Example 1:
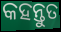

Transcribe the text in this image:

କହନ୍ତୁତ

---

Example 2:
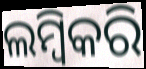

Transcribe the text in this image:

ଲମ୍ବିକରି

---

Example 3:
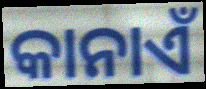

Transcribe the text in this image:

କାନାଏଁ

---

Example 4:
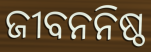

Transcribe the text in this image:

ଜୀବନନିଷ୍ଠ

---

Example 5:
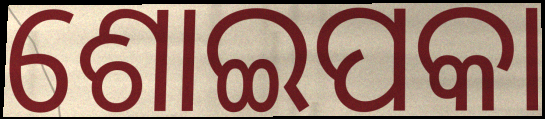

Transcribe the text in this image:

ଶୋଇପକା